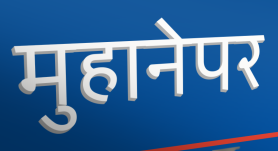
मुहानेपर